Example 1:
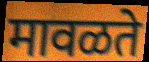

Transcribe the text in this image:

मावळते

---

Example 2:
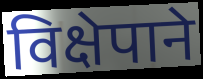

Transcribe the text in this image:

विक्षेपाने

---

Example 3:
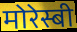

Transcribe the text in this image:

मोरेस्बी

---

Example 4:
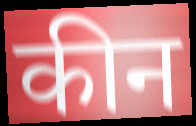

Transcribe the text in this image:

कीन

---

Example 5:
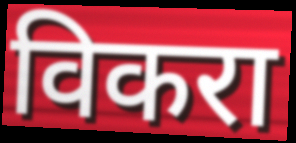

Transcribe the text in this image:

विकरा